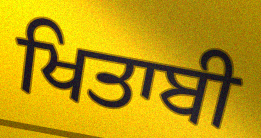
ਖਿਤਾਬੀ